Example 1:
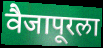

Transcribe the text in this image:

वैजापूरला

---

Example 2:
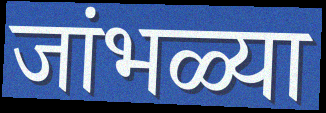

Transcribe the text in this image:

जांभळ्या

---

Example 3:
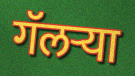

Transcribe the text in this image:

गॅलऱ्या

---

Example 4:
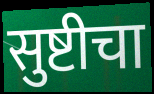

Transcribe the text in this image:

सुष्टीचा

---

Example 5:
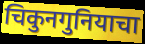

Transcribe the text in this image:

चिकुनगुनियाचा